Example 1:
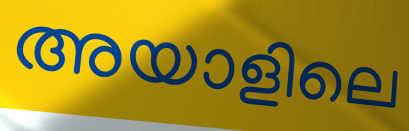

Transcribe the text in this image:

അയാളിലെ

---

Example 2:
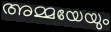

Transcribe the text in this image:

അമ്മയേയും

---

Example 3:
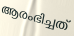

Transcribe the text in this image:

ആരംഭിച്ചത്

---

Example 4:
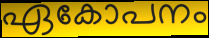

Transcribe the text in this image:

ഏകോപനം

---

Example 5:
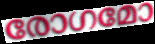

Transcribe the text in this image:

രോഗമോ